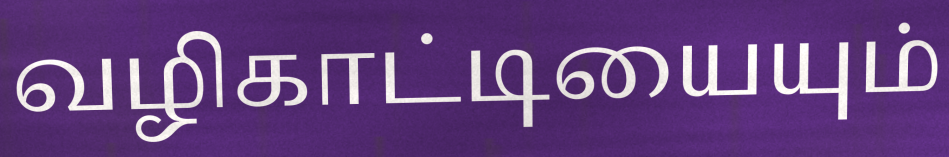
வழிகாட்டியையும்